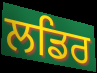
ਲਡਿਰ